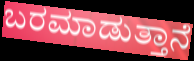
ಬರಮಾಡುತ್ತಾನೆ